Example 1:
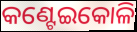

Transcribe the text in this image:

କଣ୍ଟେଇକୋଳି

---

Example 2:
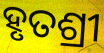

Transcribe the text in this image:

ହୃତଶ୍ରୀ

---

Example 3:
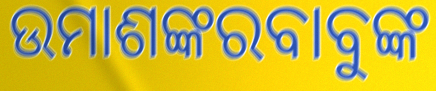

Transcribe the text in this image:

ଉମାଶଙ୍କରବାବୁଙ୍କ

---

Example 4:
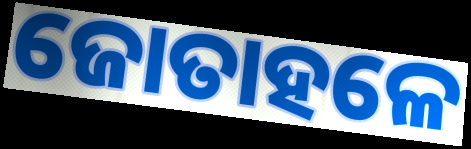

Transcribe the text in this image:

ଜୋତାହଳେ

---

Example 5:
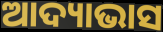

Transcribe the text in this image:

ଆଦ୍ୟାଭାସ